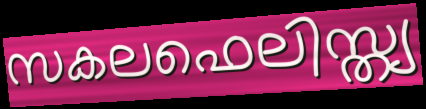
സകലഫെലിസ്ത്യ